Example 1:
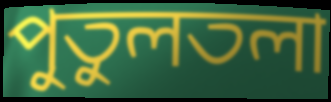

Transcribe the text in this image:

পুতুলতলা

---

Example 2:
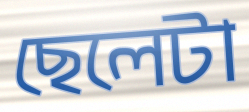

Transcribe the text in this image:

ছেলেটা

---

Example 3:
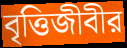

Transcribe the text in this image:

বৃত্তিজীবীর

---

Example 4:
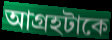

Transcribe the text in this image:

আগ্রহটাকে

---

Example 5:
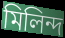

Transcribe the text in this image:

মিলিন্দ